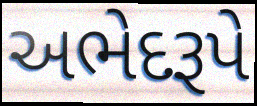
અભેદરૂપે